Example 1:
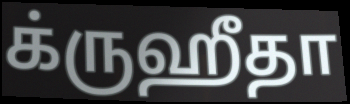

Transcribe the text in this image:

க்ருஹீதா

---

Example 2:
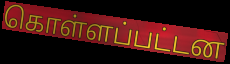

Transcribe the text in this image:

கொள்ளப்பட்டன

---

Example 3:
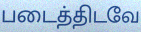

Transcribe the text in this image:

படைத்திடவே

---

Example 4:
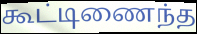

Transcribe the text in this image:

கூட்டிணைந்த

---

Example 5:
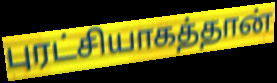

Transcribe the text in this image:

புரட்சியாகத்தான்